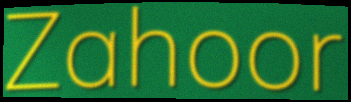
Zahoor